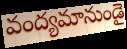
వంద్యమానుండై